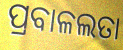
ପ୍ରବାଳଲତା